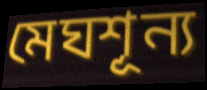
মেঘশূন্য